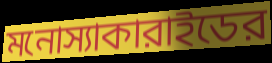
মনোস্যাকারাইডের